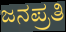
ಜನಪ್ರತಿ